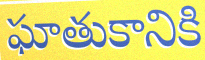
ఘాతుకానికి